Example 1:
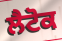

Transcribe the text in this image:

ਲੈਟੋਕ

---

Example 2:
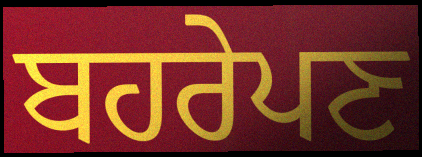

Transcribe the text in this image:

ਬਹਰੇਪਣ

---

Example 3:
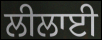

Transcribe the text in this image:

ਲੀਲਾਈ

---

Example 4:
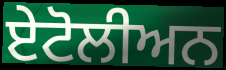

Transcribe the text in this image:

ਏਟੋਲੀਅਨ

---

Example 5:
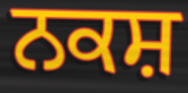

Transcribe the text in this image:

ਨਕਸ਼